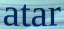
atar